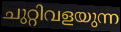
ചുറ്റിവളയുന്ന